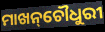
ମାଖନ୍‌ଚୌଧୁରୀ